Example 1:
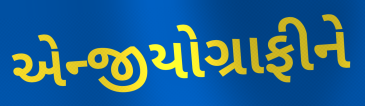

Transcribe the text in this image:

એન્જીયોગ્રાફીને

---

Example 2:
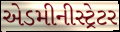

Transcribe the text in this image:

એડમીનીસ્ટ્રેટર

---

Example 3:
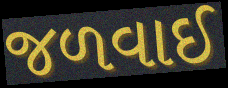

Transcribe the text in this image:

જળવાઈ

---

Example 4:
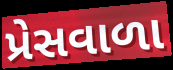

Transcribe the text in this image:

પ્રેસવાળા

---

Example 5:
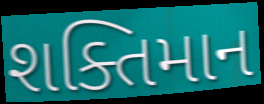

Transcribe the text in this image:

શક્તિમાન